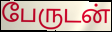
பேருடன்